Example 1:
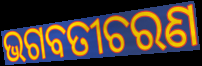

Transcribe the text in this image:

ଭଗବତୀଚରଣ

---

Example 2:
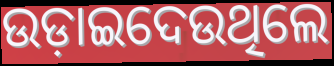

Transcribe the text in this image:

ଉଡ଼ାଇଦେଉଥିଲେ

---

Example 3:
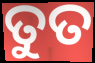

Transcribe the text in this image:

ତୁତ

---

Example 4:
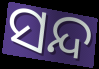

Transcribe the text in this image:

ସନ୍ଦ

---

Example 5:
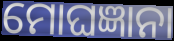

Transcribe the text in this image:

ମୋଘଜ୍ଞାନା